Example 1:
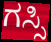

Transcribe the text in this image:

ಗಸ್ಸಿ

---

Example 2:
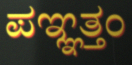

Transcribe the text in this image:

ಪಞ್ಞತ್ತಂ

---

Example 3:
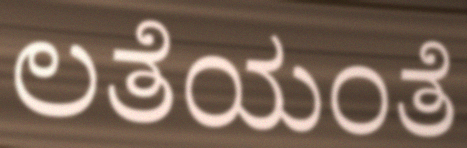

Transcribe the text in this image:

ಲತೆಯಂತೆ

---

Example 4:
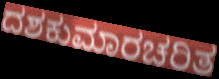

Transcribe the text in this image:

ದಶಕುಮಾರಚರಿತ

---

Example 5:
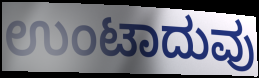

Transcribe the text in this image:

ಉಂಟಾದುವು